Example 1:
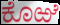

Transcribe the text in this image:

ಕೊಱೆ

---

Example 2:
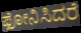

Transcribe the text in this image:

ಫೋನಿಸಿದರೆ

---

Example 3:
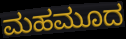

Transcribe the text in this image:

ಮಹಮೂದ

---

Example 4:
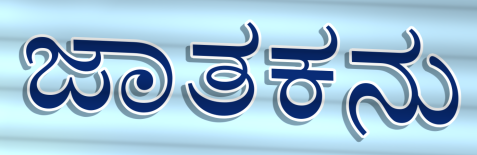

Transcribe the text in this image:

ಜಾತಕನು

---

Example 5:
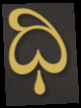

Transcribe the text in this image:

ಧಿ